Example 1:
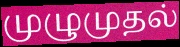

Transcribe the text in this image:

முழுமுதல்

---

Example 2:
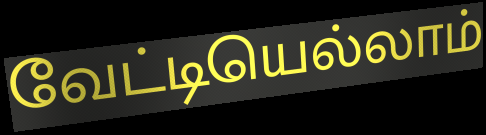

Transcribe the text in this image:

வேட்டியெல்லாம்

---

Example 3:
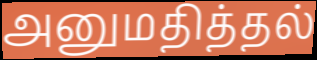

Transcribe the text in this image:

அனுமதித்தல்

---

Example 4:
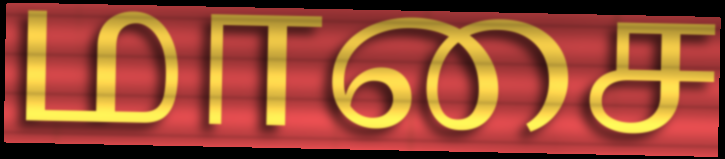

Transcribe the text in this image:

மாசை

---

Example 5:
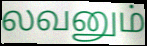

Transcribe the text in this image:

லவனும்